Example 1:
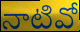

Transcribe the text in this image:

నాటివో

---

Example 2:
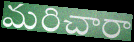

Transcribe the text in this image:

మరిచారా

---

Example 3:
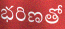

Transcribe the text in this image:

భరిణతో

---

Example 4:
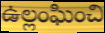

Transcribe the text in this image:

ఉల్లంఘించి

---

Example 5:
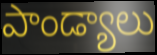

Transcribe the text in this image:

పాండ్యాలు